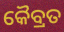
କୈବ୍ରତ